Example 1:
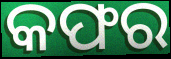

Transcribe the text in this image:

କଫର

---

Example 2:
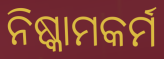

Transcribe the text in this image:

ନିଷ୍କାମକର୍ମ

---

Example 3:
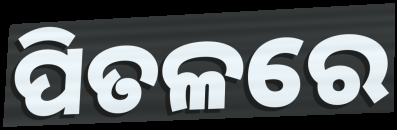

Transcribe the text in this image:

ପିତଳରେ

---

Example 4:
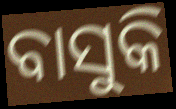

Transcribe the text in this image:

ବାସୁକି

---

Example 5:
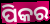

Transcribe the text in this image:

ପିକର